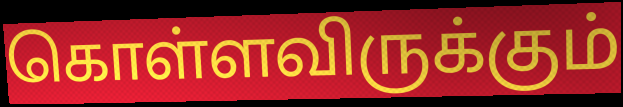
கொள்ளவிருக்கும்